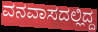
ವನವಾಸದಲ್ಲಿದ್ದ